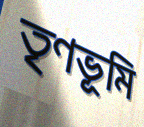
তৃণভূমি